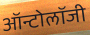
ऑन्टोलॉजी